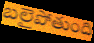
బలైపోతుంది